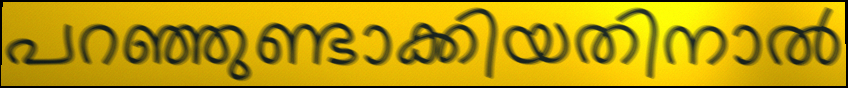
പറഞ്ഞുണ്ടാക്കിയതിനാൽ